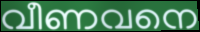
വീണവനെ